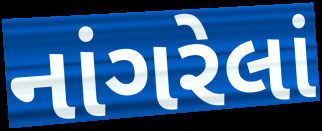
નાંગરેલાં